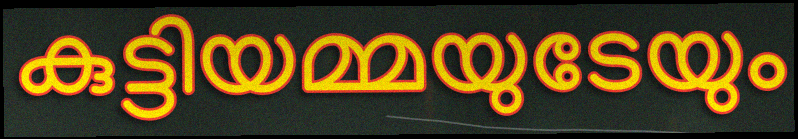
കുട്ടിയമ്മയുടേയും